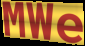
MWe